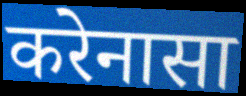
करेनासा